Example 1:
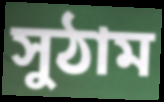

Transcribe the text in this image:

সুঠাম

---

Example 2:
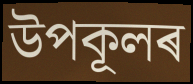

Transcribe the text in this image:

উপকূলৰ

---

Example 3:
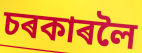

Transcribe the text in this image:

চৰকাৰলৈ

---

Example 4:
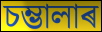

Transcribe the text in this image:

চম্ভালাৰ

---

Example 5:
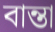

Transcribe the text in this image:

বান্তা